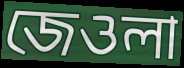
জেওলা